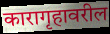
कारागृहावरील